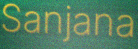
Sanjana